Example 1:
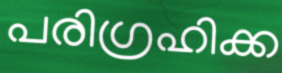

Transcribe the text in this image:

പരിഗ്രഹിക്ക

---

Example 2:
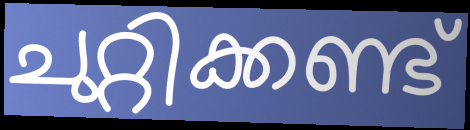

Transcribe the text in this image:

ചുറ്റിക്കണ്ട്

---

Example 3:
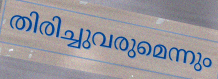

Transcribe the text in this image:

തിരിച്ചുവരുമെന്നും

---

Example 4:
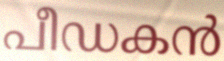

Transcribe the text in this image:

പീഡകൻ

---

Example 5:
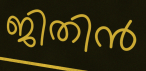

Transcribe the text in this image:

ജിതിൻ